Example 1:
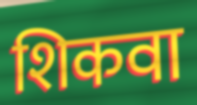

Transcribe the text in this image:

शिकवा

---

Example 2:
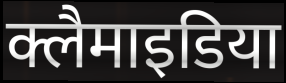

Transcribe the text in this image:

क्लैमाइडिया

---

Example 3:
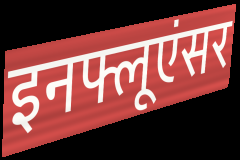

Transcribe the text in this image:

इनफ्लूएंसर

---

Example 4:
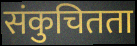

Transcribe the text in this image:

संकुचितता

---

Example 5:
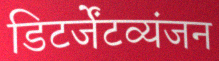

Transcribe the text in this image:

डिटर्जेंटव्यंजन